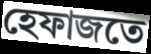
হেফাজতে